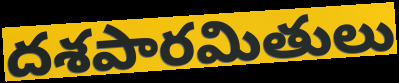
దశపారమితులు